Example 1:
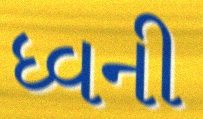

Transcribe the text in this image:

ધ્વની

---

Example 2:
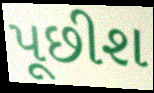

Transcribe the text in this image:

પૂછીશ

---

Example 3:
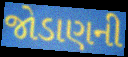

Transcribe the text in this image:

જોડાણની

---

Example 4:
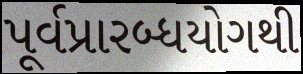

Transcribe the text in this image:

પૂર્વપ્રારબ્ધયોગથી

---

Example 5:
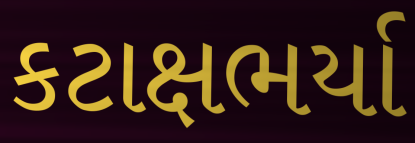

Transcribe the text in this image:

કટાક્ષભર્યા